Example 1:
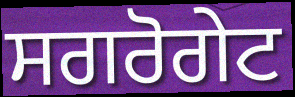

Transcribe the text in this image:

ਸਗਰੋਗੇਟ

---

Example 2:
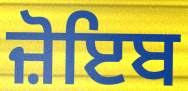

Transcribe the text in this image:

ਜ਼ੋਇਬ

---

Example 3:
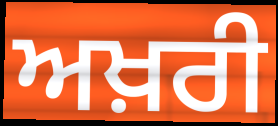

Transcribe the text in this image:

ਅਖ਼ਰੀ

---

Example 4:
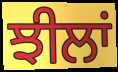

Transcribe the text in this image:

ਝੀਲਾਂ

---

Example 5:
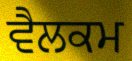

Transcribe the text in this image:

ਵੈਲਕਮ